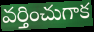
వర్తించుగాక